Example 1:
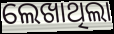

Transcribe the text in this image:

ଲେଖାଥିଲା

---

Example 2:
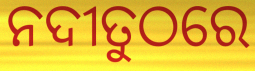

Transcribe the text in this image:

ନଦୀତୁଠରେ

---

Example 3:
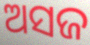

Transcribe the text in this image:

ଅସଜ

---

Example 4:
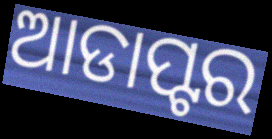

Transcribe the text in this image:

ଆଡାପ୍ଟର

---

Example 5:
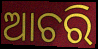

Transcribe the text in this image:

ଆଚରି